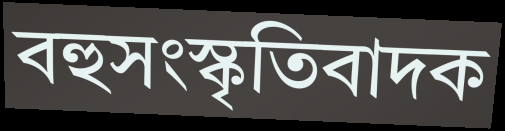
বহুসংস্কৃতিবাদক